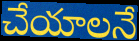
చేయాలనే